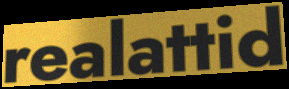
realattid